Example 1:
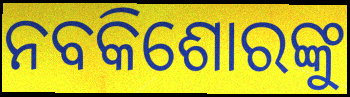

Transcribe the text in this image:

ନବକିଶୋରଙ୍କୁ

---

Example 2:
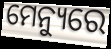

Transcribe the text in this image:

ମେନ୍ୟୁରେ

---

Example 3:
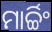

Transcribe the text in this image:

ମାର୍ଚ୍ଚିଂ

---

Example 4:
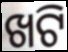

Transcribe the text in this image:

ଖଟି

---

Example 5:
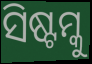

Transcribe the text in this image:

ସିଷ୍ଟମ୍କୁ